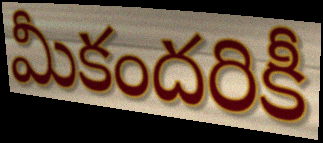
మీకందరికీ